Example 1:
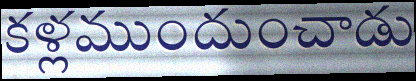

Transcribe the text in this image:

కళ్లముందుంచాడు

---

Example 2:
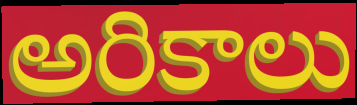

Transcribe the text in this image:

అరికాలు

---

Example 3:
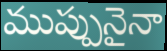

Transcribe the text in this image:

ముప్పునైనా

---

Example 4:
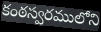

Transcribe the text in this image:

కంఠస్వరములోని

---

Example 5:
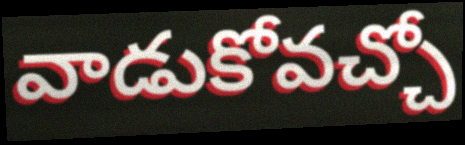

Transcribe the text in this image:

వాడుకోవచ్చో